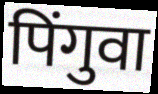
पिंगुवा